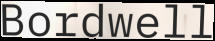
Bordwell